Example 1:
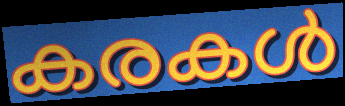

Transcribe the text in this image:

കരകൾ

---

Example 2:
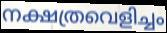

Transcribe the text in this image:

നക്ഷത്രവെളിച്ചം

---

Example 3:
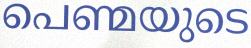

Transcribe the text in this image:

പെണ്മയുടെ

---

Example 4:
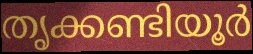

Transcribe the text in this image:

തൃക്കണ്ടിയൂർ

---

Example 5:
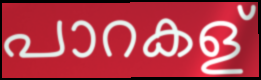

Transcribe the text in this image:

പാറകള്